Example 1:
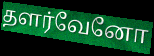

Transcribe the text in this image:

தளர்வேனோ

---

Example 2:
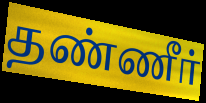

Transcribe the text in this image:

தண்ணீர்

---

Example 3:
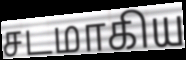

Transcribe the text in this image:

சடமாகிய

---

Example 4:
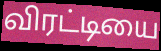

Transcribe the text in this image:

விரட்டியை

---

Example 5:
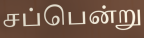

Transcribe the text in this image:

சப்பென்று